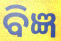
ବିଜ୍ଞ